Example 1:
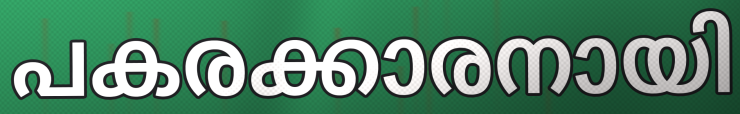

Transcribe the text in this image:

പകരക്കാരനായി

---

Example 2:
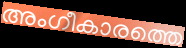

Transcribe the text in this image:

അംഗീകാരത്തെ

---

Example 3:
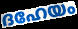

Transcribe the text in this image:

ദഹേയം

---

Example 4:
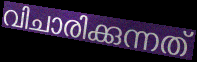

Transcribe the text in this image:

വിചാരിക്കുന്നത്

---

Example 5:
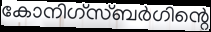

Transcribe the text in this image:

കോനിഗ്സ്ബർഗിന്റെ